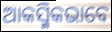
ଆକସ୍ମିକଭାବେ